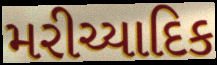
મરીચ્યાદિક